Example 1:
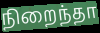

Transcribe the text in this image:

நிறைந்தா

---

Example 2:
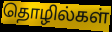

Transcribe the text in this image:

தொழில்கள்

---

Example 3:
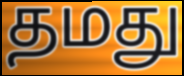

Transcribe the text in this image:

தமது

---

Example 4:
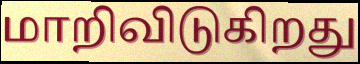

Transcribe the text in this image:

மாறிவிடுகிறது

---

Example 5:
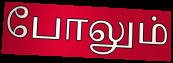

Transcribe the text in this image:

போலும்